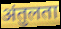
अंतुलता